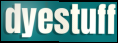
dyestuff